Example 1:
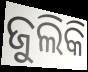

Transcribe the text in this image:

ଜୁଲିକି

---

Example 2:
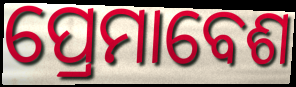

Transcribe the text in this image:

ପ୍ରେମାବେଶ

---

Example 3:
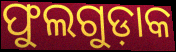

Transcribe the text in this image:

ଫୁଲଗୁଡ଼ାକ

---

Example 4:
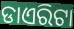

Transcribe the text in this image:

ଡାଏରିଟା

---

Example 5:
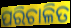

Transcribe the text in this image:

ପରିଚାଳିତ